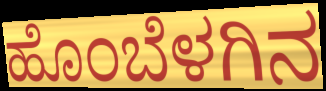
ಹೊಂಬೆಳಗಿನ